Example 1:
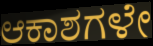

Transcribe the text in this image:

ಆಕಾಶಗಳೇ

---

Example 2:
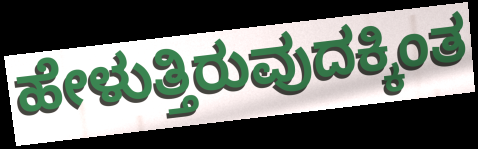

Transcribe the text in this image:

ಹೇಳುತ್ತಿರುವುದಕ್ಕಿಂತ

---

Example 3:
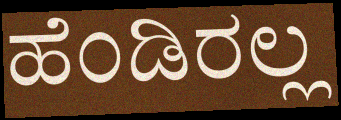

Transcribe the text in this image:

ಹೆಂಡಿರಲ್ಲ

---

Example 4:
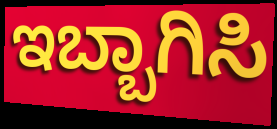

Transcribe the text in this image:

ಇಬ್ಬಾಗಿಸಿ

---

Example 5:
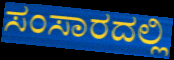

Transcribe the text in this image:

ಸಂಸಾರದಲ್ಲಿ